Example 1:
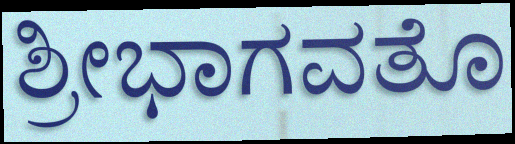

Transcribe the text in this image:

ಶ್ರೀಭಾಗವತೊ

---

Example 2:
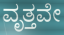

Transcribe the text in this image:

ವೃತ್ತವೇ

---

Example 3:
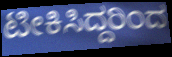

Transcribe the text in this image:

ಟೀಕಿಸಿದ್ದರಿಂದ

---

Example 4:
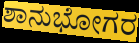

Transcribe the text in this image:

ಶಾನುಭೋಗರ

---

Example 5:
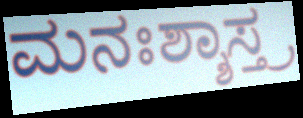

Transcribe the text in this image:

ಮನಃಶ್ಶಾಸ್ತ್ರ